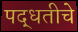
पद्धतीचे